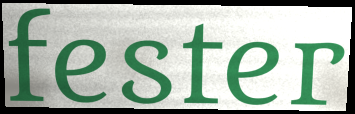
fester